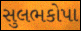
સુલભકોપા